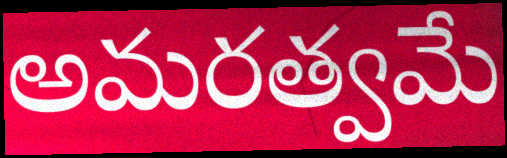
అమరత్వమే